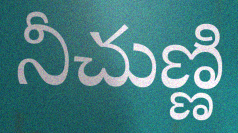
నీచుణ్ణి